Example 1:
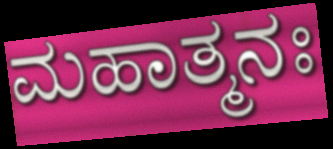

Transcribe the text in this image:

ಮಹಾತ್ಮನಃ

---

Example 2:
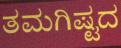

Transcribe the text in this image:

ತಮಗಿಷ್ಟದ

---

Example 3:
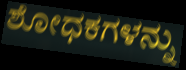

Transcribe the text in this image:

ಶೋಧಕಗಳನ್ನು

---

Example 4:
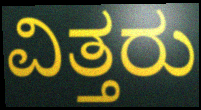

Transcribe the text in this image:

ವಿತ್ತರು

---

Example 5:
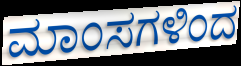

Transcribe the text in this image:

ಮಾಂಸಗಳಿಂದ